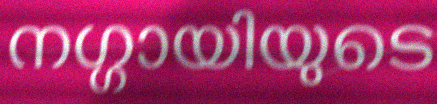
നഗ്ഗായിയുടെ